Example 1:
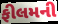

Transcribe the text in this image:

ફીલમની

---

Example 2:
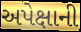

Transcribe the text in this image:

અપેક્ષાની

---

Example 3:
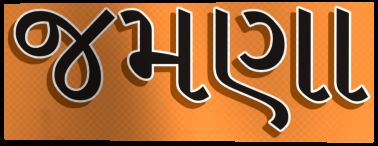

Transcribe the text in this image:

જમણા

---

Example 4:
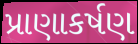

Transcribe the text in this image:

પ્રાણાકર્ષણ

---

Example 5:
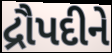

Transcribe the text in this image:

દ્રૌપદીને